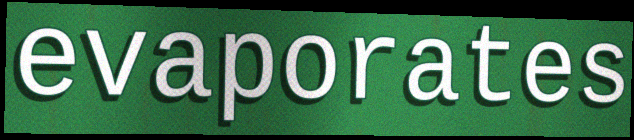
evaporates